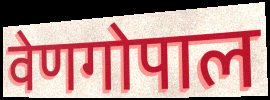
वेणगोपाल